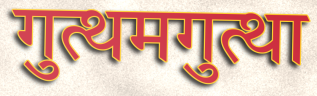
गुत्थमगुत्था